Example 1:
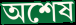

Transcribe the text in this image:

অশেষ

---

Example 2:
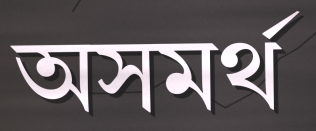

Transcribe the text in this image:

অসমৰ্থ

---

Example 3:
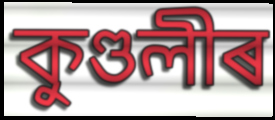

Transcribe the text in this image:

কুণ্ডলীৰ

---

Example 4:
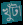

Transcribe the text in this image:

খুঁটা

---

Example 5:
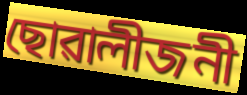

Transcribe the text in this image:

ছোৱালীজনী